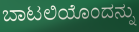
ಬಾಟಲಿಯೊಂದನ್ನು